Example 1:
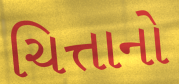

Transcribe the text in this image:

ચિત્તાનો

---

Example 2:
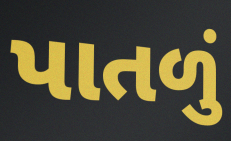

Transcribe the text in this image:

પાતળું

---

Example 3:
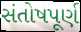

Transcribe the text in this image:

સંતોષપૂર્ણ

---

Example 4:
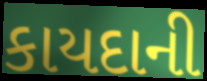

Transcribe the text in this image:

કાયદાની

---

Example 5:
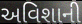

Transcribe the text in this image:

અવિશાની